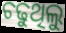
ଚଢୁଥିଲୁ